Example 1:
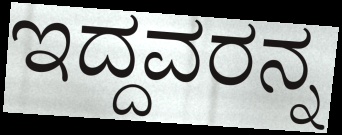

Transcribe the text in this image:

ಇದ್ದವರನ್ನ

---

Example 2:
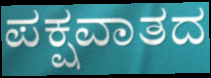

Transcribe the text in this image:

ಪಕ್ಷವಾತದ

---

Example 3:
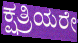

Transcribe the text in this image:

ಕ್ಷತ್ರಿಯರೇ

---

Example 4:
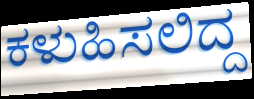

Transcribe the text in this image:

ಕಳುಹಿಸಲಿದ್ದ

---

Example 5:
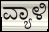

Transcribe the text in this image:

ವ್ಯಾಳಿ